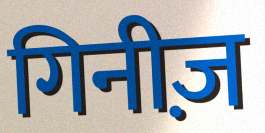
गिनीज़